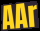
AAr